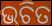
ଭଚିତ